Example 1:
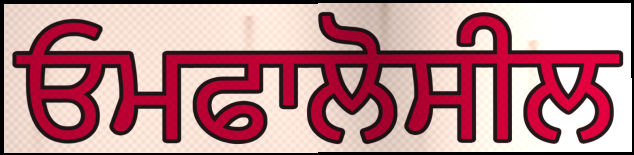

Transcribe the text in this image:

ਓਮਫਾਲੋਸੀਲ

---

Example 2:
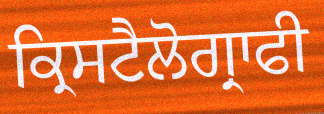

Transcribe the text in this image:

ਕ੍ਰਿਸਟੈਲੋਗ੍ਰਾਫੀ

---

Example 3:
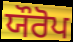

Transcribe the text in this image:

ਯੌਰੋਪ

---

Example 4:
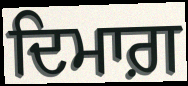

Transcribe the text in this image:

ਦਿਮਾਗ਼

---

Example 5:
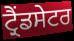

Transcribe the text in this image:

ਟ੍ਰੈਂਡਸੇਟਰ